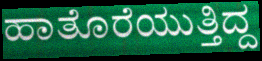
ಹಾತೊರೆಯುತ್ತಿದ್ದ